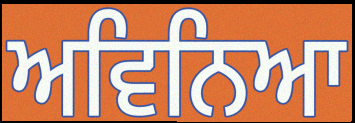
ਅਵਿਨਿਆ